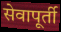
सेवापूर्ती